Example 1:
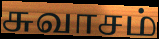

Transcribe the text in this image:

சுவாசம்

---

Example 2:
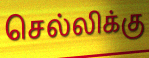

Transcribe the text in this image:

செல்லிக்கு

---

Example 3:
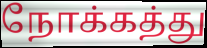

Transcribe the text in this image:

நோக்கத்து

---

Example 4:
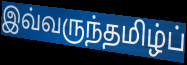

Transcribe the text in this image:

இவ்வருந்தமிழ்ப்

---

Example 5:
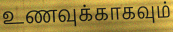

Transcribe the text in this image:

உணவுக்காகவும்